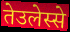
तेउलेस्से